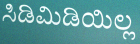
ಸಿಡಿಮಿಡಿಯಿಲ್ಲ